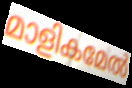
മാളികമേൽ